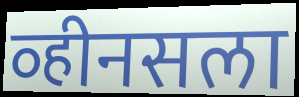
व्हीनसला